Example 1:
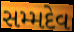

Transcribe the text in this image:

સમ્મદેવ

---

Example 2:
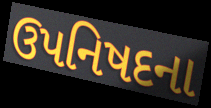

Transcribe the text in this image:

ઉપનિષદના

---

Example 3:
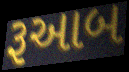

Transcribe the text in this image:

રૂઆબ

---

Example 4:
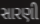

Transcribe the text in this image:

સારણી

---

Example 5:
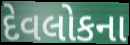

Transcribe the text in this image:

દેવલોકના